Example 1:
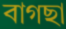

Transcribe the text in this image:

বাগছা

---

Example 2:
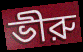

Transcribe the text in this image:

ভীৰু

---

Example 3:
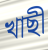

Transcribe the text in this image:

খাছী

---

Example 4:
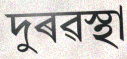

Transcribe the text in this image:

দুৰৱস্থা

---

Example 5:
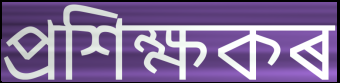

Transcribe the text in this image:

প্ৰশিক্ষকৰ